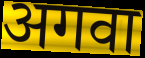
अगवा